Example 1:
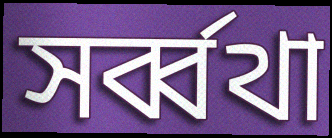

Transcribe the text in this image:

সৰ্ব্বথা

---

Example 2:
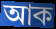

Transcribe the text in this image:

আক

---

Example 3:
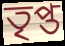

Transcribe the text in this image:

তৃপ্ত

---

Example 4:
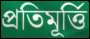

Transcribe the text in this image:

প্ৰতিমূৰ্ত্তি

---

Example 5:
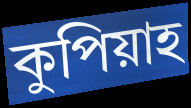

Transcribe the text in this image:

কুপিয়াহ